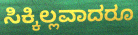
ಸಿಕ್ಕಿಲ್ಲವಾದರೂ